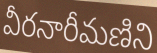
వీరనారీమణిని